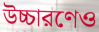
উচ্চারণেও